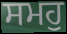
ਸਮਹੁ